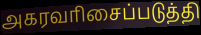
அகரவரிசைப்படுத்தி